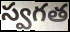
స్వగత